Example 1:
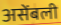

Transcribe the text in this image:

असेंबली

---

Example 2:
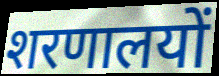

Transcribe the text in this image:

शरणालयों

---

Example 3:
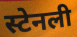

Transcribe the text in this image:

स्टेनली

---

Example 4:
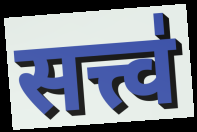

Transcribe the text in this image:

सत्त्व॑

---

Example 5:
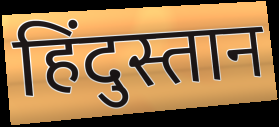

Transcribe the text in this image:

हिंदुस्‍तान